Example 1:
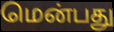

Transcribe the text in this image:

மென்பது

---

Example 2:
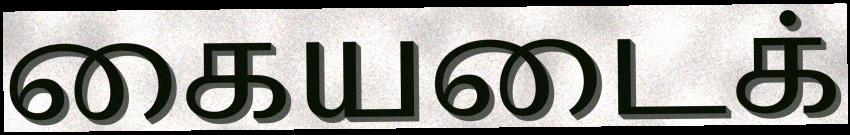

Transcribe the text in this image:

கையடைக்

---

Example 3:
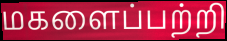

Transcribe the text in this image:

மகளைப்பற்றி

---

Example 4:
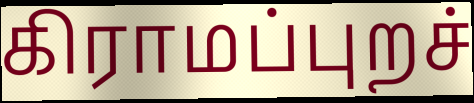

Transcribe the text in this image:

கிராமப்புறச்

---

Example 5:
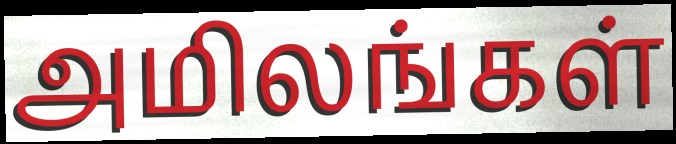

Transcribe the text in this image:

அமிலங்கள்